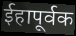
ईहापूर्वक